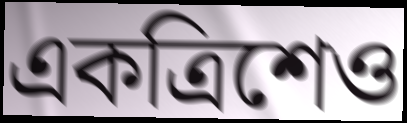
একত্রিশেও